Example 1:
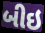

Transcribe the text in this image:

બીઇ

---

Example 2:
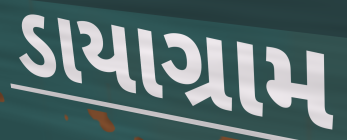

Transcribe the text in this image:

ડાયાગ્રામ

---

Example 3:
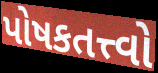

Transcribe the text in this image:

પોષકતત્ત્વો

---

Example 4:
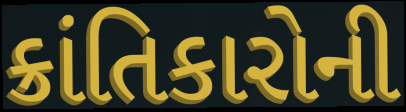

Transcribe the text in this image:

ક્રાંતિકારોની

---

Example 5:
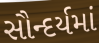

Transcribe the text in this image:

સૌન્દર્યમાં